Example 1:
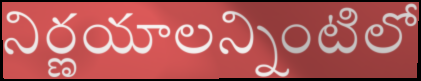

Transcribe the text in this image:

నిర్ణయాలన్నింటిలో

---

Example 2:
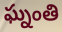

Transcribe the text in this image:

ఘ్నంతి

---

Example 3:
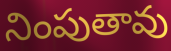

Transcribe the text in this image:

నింపుతావు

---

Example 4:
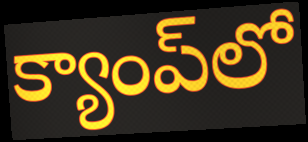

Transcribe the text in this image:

క్యాంప్‌లో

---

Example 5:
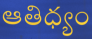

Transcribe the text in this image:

ఆతిధ్యం